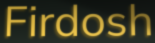
Firdosh